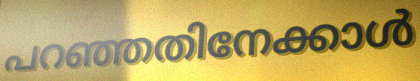
പറഞ്ഞതിനേക്കാൾ